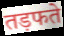
तड़फते